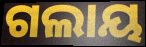
ଗଲାୟ